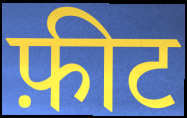
फ़ीट